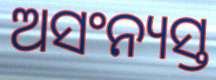
ଅସଂନ୍ୟସ୍ତ